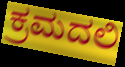
ಕ್ರಮದಲಿ